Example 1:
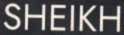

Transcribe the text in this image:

SHEIKH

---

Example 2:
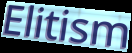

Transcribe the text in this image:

Elitism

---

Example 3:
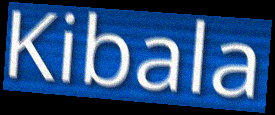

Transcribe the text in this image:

Kibala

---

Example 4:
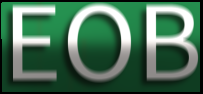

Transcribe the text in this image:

EOB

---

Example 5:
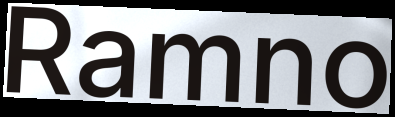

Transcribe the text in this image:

Ramno